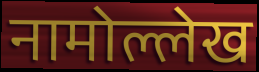
नामोल्लेख